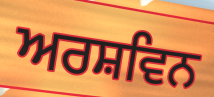
ਅਰਸ਼ਵਿਨ